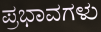
ಪ್ರಭಾವಗಳು